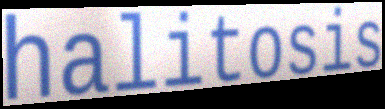
halitosis